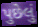
પુછેલું